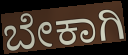
ಬೇಕಾಗಿ